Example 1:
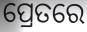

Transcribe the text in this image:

ପ୍ରେତରେ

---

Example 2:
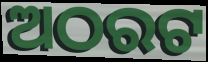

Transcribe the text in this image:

ଅଠରଟ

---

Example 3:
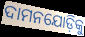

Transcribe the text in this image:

ଦାମନଯୋଡ଼ିକୁ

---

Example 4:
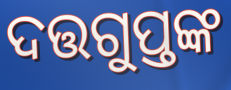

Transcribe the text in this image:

ଦତ୍ତଗୁପ୍ତଙ୍କ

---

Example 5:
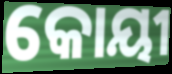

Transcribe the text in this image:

କୋୟୀ